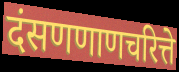
दंसणणाणचरित्ते